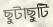
ছুটাছুটি